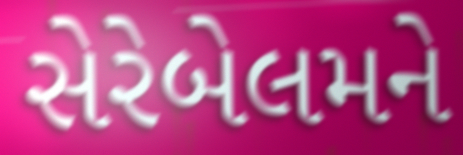
સેરેબેલમને